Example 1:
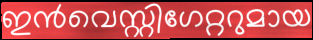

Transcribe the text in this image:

ഇൻവെസ്റ്റിഗേറ്ററുമായ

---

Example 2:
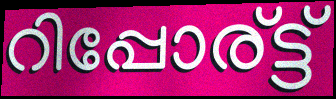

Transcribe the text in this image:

റിപ്പോര്ട്ട്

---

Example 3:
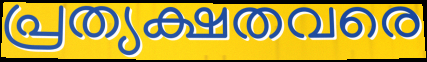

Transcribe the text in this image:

പ്രത്യക്ഷതവരെ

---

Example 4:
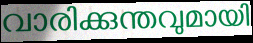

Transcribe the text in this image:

വാരിക്കുന്തവുമായി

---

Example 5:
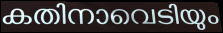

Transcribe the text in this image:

കതിനാവെടിയും